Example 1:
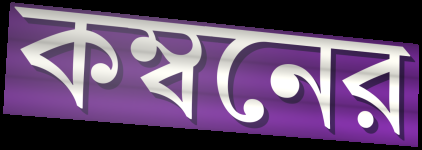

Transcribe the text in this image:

কম্বনের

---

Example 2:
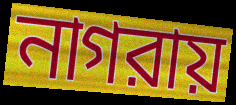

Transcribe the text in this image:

নাগরায়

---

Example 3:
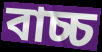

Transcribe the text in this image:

বাচ্চ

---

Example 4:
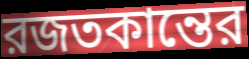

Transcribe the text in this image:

রজতকান্তের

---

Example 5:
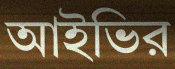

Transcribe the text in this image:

আইভির